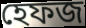
হেফজ